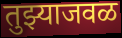
तुझ्याजवळ